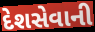
દેશસેવાની